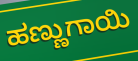
ಹಣ್ಣುಗಾಯಿ